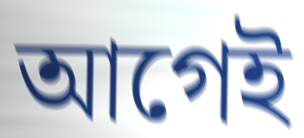
আগেই